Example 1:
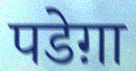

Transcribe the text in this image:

पडेग़ा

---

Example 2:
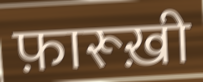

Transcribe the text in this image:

फ़ारूख़ी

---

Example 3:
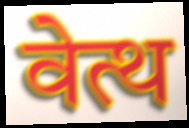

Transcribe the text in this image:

वेत्थ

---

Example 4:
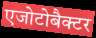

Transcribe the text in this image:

एजोटोबैक्टर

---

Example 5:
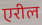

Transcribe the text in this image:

एरील